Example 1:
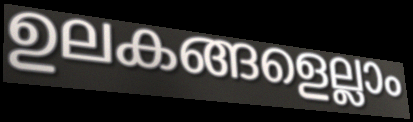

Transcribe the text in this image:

ഉലകങ്ങളെല്ലാം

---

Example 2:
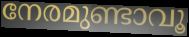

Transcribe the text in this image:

നേരമുണ്ടാവൂ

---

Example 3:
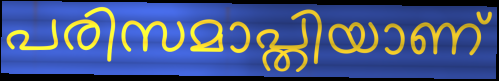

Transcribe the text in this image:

പരിസമാപ്തിയാണ്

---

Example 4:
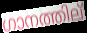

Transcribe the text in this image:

ഗാനത്തില്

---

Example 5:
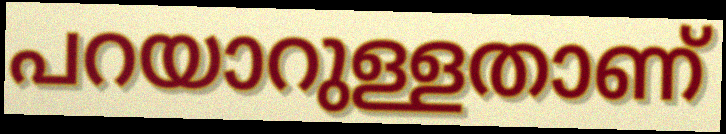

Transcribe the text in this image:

പറയാറുള്ളതാണ്